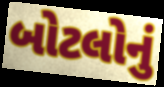
બોટલોનું